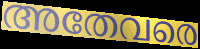
അതേവരെ